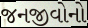
જનજીવોનો